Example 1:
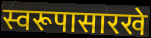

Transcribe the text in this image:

स्वरूपासारखे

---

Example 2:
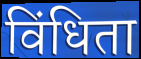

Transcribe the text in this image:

विंधिता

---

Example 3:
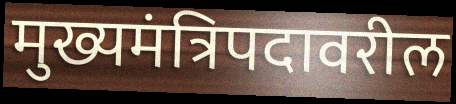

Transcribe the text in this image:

मुख्यमंत्रिपदावरील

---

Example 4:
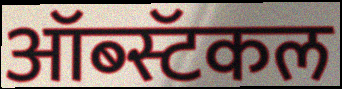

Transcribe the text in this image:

ऑब्स्टॅकल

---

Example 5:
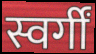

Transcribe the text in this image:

स्वर्गीं